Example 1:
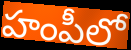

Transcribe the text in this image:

హంపీలో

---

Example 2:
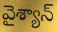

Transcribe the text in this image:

వైశ్యాన్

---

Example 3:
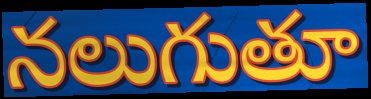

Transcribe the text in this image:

నలుగుతూ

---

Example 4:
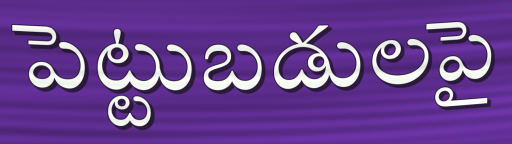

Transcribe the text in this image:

పెట్టుబడులపై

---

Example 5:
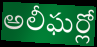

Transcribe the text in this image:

అలీఘర్లో